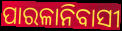
ପାରଳାନିବାସୀ